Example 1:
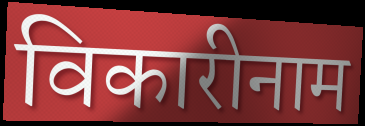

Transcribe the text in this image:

विकारीनाम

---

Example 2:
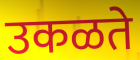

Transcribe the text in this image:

उकळते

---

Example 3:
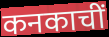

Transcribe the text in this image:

कनकाचीं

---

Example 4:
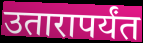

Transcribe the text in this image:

उतारापर्यंत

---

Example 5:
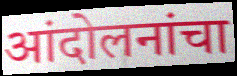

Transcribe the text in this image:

आंदोलनांचा